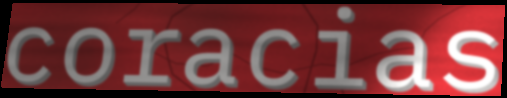
coracias